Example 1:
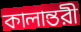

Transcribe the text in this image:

কালান্তরী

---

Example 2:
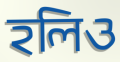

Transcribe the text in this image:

হলিও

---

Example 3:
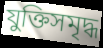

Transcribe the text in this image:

যুক্তিসমৃদ্ধ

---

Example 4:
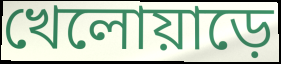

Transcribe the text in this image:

খেলোয়াড়ে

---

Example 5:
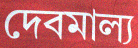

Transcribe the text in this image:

দেবমাল্য